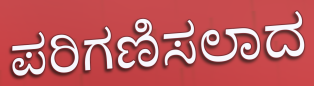
ಪರಿಗಣಿಸಲಾದ